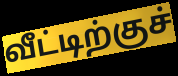
வீட்டிற்குச்